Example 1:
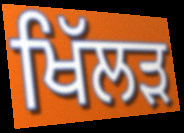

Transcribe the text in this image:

ਖਿੱਲੜ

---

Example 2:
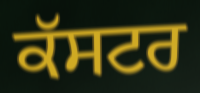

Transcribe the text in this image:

ਕੱਸਟਰ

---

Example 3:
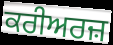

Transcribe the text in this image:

ਕਰੀਅਰਜ਼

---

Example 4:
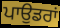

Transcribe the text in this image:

ਪਾਉਡਰਾਂ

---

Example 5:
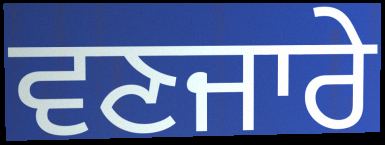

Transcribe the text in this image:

ਵਣਜਾਰੇ